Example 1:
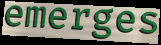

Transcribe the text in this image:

emerges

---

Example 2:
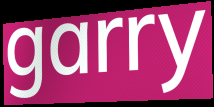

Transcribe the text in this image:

garry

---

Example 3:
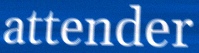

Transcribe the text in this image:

attender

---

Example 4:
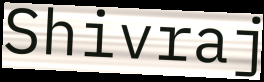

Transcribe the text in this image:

Shivraj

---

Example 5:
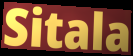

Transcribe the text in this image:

Sitala